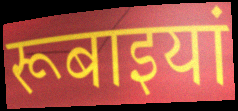
रूबाइयां